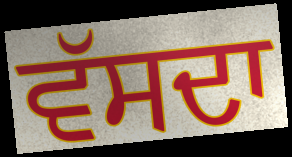
ਵੱਸਦਾ